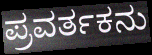
ಪ್ರವರ್ತಕನು